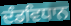
ਦੰਡਵਿਧਾਨ